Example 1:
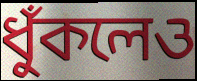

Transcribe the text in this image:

ধুঁকলেও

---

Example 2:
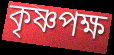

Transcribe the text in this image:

কৃষ্ণপক্ষ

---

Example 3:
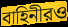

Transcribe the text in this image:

বাহিনীরও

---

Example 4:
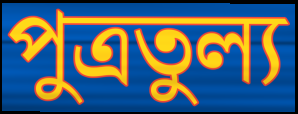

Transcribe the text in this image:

পুত্রতুল্য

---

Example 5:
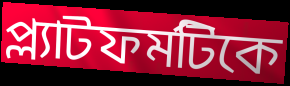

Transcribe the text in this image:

প্ল্যাটফর্মটিকে